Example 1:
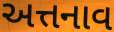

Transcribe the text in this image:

અત્તનાવ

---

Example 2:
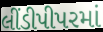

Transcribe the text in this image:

લીંડીપીપરમાં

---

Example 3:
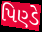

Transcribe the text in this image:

પિણ્ડે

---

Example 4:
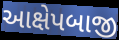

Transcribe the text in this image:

આક્ષેપબાજી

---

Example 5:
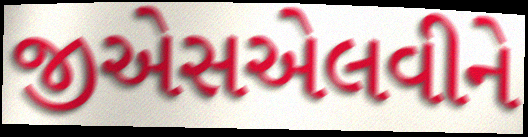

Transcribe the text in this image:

જીએસએલવીને